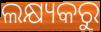
ଲକ୍ଷ୍ୟକରୁ